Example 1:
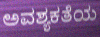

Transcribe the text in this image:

ಅವಶ್ಯಕತೆಯ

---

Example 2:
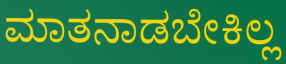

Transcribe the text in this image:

ಮಾತನಾಡಬೇಕಿಲ್ಲ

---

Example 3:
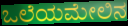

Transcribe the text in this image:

ಒಲೆಯಮೇಲಿನ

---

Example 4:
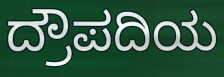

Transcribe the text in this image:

ದ್ರೌಪದಿಯ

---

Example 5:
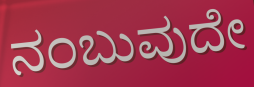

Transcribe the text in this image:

ನಂಬುವುದೇ